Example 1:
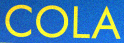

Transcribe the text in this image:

COLA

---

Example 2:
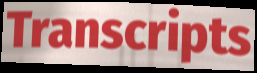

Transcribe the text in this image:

Transcripts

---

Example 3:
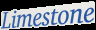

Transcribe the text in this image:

Limestone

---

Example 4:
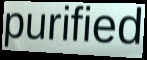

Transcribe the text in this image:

purified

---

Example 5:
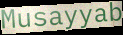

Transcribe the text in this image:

Musayyab